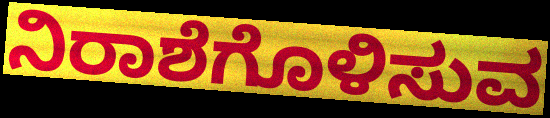
ನಿರಾಶೆಗೊಳಿಸುವ